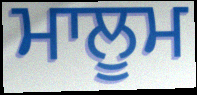
ਮਾਲੂਮ